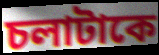
চলাটাকে